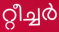
റ്റീച്ചർ